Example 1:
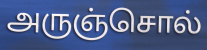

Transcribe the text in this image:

அருஞ்சொல்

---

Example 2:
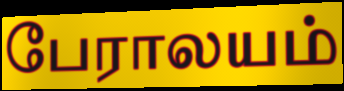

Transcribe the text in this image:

பேராலயம்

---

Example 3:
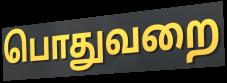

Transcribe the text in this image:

பொதுவறை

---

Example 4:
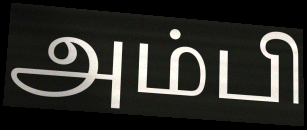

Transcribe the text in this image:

அம்பி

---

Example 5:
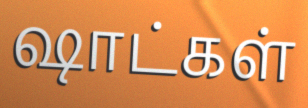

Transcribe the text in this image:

ஷாட்கள்